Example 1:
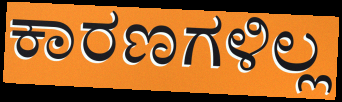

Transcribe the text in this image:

ಕಾರಣಗಳಿಲ್ಲ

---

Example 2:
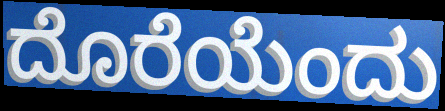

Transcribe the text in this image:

ದೊರೆಯೆಂದು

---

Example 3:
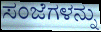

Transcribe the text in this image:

ಸಂಜೆಗಳನ್ನು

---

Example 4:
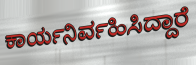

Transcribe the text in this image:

ಕಾರ್ಯನಿರ್ವಹಿಸಿದ್ದಾರೆ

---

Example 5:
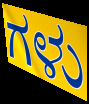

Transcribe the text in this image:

ಗಳು